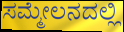
ಸಮ್ಮೇಲನದಲ್ಲಿ